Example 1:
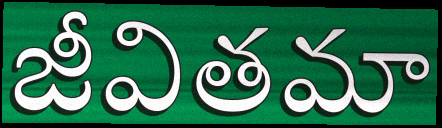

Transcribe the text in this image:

జీవితమా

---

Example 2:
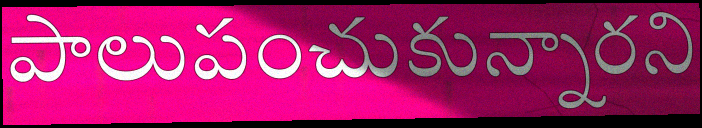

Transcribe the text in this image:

పాలుపంచుకున్నారని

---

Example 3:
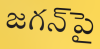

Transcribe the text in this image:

జగన్‌పై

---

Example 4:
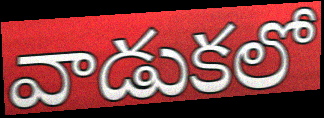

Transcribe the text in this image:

వాడుకలో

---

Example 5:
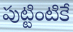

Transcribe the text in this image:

పుట్టింటికే